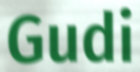
Gudi